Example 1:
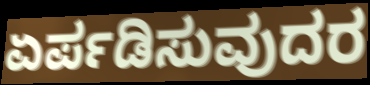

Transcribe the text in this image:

ಏರ್ಪಡಿಸುವುದರ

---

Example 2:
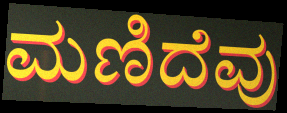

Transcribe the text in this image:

ಮಣಿದೆವು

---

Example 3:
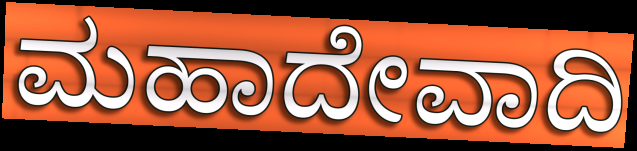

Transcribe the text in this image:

ಮಹಾದೇವಾದಿ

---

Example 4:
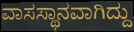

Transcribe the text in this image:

ವಾಸಸ್ಥಾನವಾಗಿದ್ದು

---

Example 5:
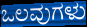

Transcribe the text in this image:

ಒಲವುಗಳು